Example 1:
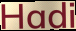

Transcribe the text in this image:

Hadi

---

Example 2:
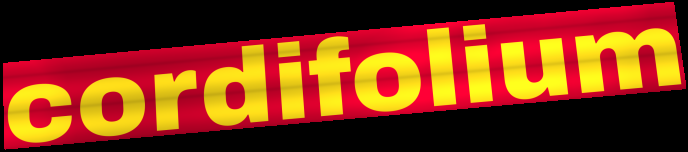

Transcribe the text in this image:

cordifolium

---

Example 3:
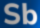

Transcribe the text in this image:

Sb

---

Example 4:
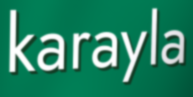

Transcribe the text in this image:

karayla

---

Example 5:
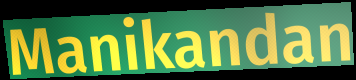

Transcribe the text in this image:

Manikandan